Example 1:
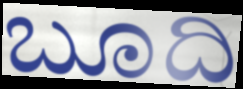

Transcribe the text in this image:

ಬೂದಿ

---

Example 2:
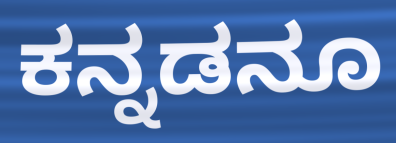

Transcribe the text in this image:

ಕನ್ನಡನೂ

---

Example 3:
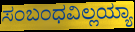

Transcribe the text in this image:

ಸಂಬಂಧವಿಲ್ಲಯ್ಯಾ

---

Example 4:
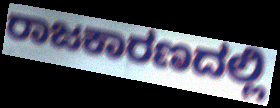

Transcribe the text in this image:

ರಾಜಕಾರಣದಲ್ಲಿ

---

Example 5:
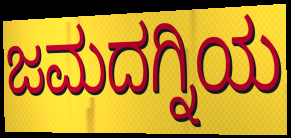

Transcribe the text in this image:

ಜಮದಗ್ನಿಯ